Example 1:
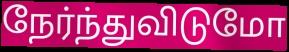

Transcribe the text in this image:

நேர்ந்துவிடுமோ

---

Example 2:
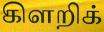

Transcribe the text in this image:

கிளறிக்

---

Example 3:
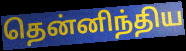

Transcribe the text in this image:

தென்னிந்திய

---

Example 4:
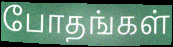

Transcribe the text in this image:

போதங்கள்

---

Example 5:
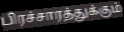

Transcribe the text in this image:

பிரச்சாரத்துக்கும்